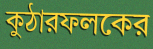
কুঠারফলকের